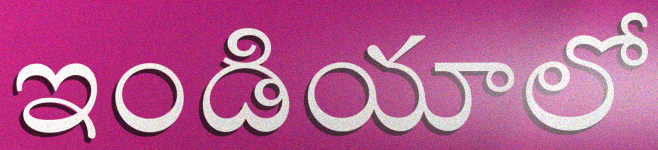
ఇండియాలో